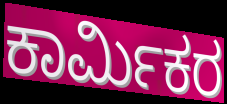
ಕಾರ್ಮಿಕರ